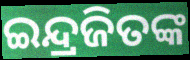
ଇନ୍ଦ୍ରଜିତଙ୍କ